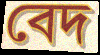
বেদ